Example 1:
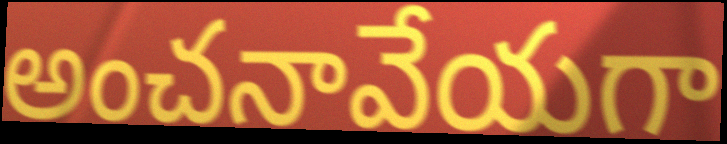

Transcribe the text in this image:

అంచనావేయగా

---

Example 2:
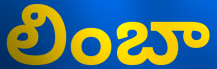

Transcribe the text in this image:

లింబా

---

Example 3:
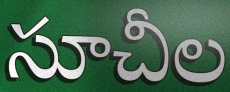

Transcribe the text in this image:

సూచీల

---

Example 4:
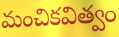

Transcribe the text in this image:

మంచికవిత్వం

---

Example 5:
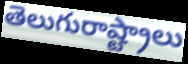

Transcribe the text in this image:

తెలుగురాష్ట్రాలు